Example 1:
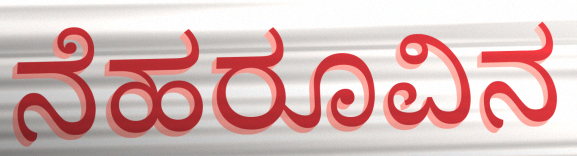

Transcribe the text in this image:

ನೆಹರೂವಿನ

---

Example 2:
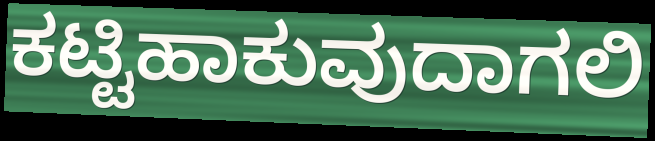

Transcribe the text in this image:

ಕಟ್ಟಿಹಾಕುವುದಾಗಲಿ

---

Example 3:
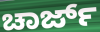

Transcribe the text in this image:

ಚಾರ್ಜ್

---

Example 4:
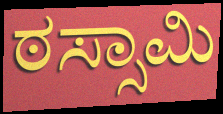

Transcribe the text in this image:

ಠಸ್ಸಾಮಿ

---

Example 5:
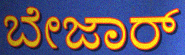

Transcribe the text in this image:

ಬೇಜಾರ್